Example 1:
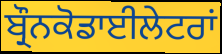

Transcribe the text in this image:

ਬ੍ਰੌਨਕੋਡਾਈਲੇਟਰਾਂ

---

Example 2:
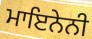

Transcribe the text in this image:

ਮਾਇਨੇਨੀ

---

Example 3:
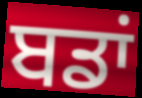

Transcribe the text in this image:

ਬਡਾਂ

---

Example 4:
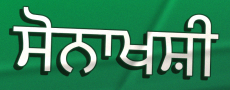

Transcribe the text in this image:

ਸੋਨਾਖਸ਼ੀ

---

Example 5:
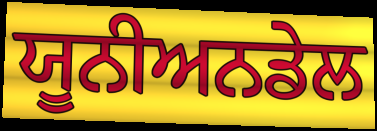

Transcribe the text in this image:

ਯੂਨੀਅਨਡੇਲ